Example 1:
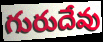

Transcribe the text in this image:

గురుదేవు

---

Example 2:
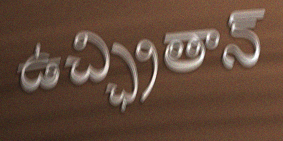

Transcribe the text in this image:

ఉచ్ఛ్రితాన్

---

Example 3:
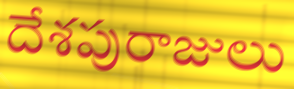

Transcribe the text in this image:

దేశపురాజులు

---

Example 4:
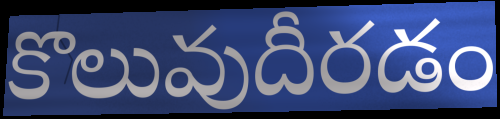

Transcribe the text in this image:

కొలువుదీరడం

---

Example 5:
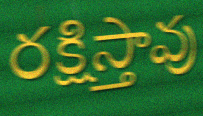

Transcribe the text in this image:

రక్షిస్తావు